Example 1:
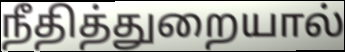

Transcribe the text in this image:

நீதித்துறையால்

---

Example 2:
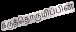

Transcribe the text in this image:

கருத்தொருமிப்பின்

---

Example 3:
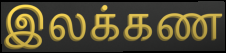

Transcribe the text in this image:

இலக்கண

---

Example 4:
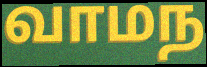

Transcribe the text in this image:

வாமந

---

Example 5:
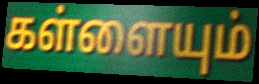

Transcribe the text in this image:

கள்ளையும்